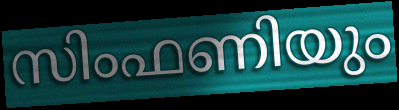
സിംഫണിയും